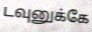
டவுனுக்கே